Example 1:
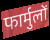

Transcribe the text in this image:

फार्मुलों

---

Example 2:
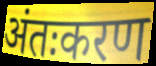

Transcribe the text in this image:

अंतःकरण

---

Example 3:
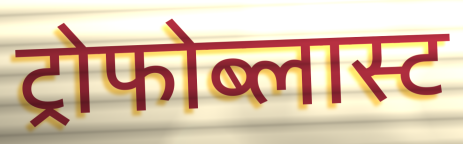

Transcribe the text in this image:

ट्रोफोब्लास्ट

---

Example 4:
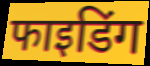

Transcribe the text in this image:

फाइडिंग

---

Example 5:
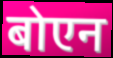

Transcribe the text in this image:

बोएन